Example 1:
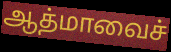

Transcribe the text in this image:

ஆத்மாவைச்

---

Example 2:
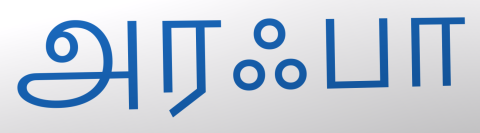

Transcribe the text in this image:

அரஃபா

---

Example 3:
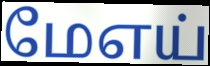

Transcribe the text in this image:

மேஎய்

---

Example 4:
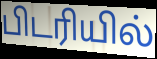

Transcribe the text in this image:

பிடரியில்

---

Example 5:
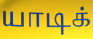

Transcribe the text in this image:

யாடிக்